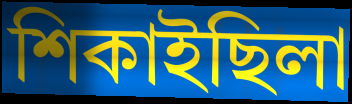
শিকাইছিলা